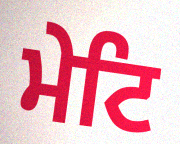
ਮੇਟਿ